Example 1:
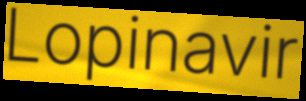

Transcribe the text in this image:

Lopinavir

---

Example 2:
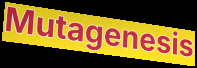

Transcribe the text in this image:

Mutagenesis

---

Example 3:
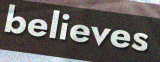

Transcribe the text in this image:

believes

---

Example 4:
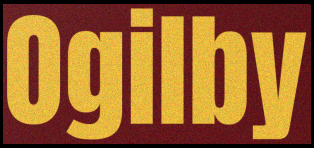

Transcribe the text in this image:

Ogilby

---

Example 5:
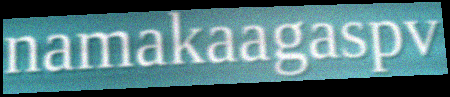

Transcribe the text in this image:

namakaagaspv